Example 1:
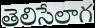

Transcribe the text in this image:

తెలిసేలాగ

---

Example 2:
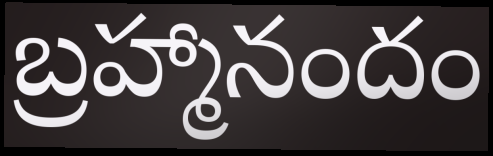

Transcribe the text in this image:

బ్రహ్మానందం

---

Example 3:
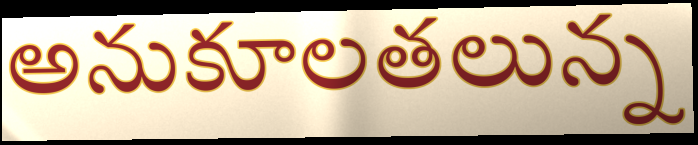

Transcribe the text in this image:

అనుకూలతలున్న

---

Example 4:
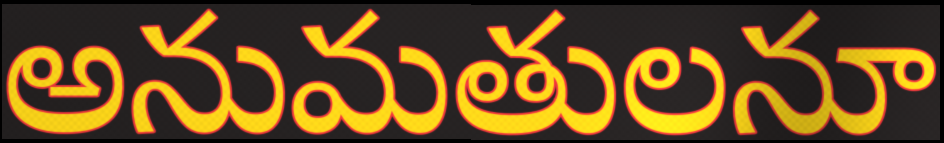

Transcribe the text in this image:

అనుమతులనూ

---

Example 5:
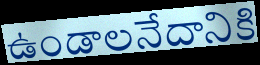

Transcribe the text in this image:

ఉండాలనేదానికి